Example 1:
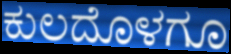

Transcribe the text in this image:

ಕುಲದೊಳಗೂ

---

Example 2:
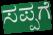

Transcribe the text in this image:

ಸಪ್ಪಗೆ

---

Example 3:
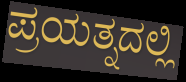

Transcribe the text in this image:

ಪ್ರಯತ್ನದಲ್ಲಿ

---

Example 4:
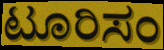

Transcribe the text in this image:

ಟೂರಿಸಂ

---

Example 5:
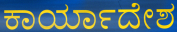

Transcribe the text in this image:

ಕಾರ್ಯಾದೇಶ